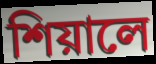
শিয়ালে